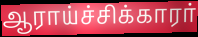
ஆராய்ச்சிக்காரர்